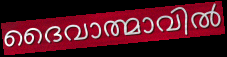
ദൈവാത്മാവിൽ